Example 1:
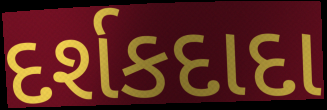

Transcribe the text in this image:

દર્શકદાદા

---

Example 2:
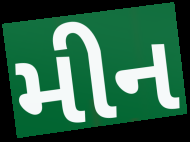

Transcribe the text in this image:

મીન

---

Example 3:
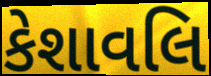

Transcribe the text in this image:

કેશાવલિ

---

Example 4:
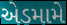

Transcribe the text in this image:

એડમામે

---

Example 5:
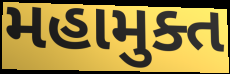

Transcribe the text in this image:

મહામુક્ત